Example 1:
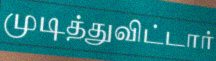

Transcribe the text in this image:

முடித்துவிட்டார்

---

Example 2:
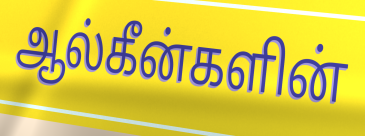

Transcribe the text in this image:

ஆல்கீன்களின்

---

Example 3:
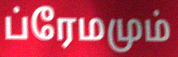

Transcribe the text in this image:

ப்ரேமமும்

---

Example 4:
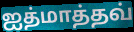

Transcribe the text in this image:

ஐத்மாத்தவ்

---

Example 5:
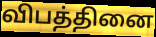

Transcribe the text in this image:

விபத்தினை